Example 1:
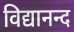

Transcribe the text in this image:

विद्यानन्द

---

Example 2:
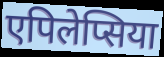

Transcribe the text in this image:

एपिलेप्सिया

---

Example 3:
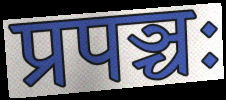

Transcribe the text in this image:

प्रपञ्चः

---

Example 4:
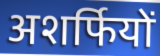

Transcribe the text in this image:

अशर्फियों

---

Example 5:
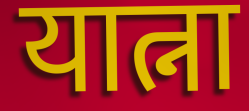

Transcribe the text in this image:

यात्ना